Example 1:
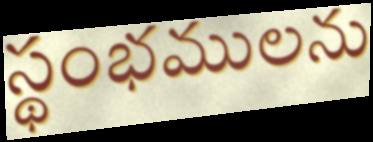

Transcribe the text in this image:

స్థంభములను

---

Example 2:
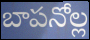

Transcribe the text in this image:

బాపనోల్ల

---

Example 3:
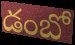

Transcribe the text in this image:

డంబో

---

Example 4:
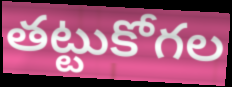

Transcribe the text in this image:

తట్టుకోగల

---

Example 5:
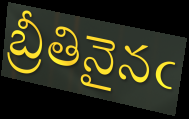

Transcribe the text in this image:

బ్రీతినైనఁ